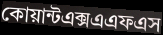
কোয়ান্টএক্সএএফএস